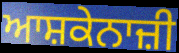
ਆਸ਼ਕੇਨਾਜ਼ੀ